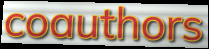
coauthors